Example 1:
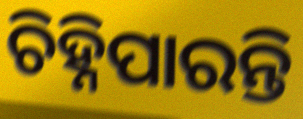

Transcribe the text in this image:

ଚିହ୍ନିପାରନ୍ତି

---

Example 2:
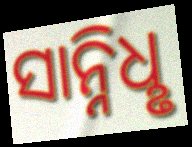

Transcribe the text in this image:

ସାନ୍ନିଧୢ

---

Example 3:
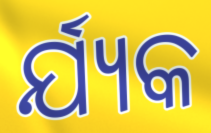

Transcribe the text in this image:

ର୍ଯ୍ୟକ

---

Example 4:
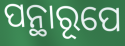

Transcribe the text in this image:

ପନ୍ଥାରୂପେ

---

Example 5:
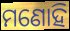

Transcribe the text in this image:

ମଣୋହି